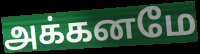
அக்கனமே